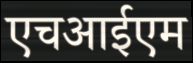
एचआईएम